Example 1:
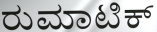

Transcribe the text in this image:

ರುಮಾಟಿಕ್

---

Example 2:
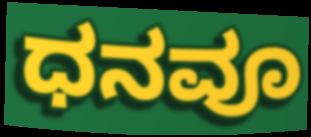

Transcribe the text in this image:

ಧನವೂ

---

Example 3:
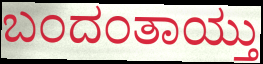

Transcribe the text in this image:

ಬಂದಂತಾಯ್ತು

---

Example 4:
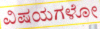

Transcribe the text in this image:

ವಿಷಯಗಳೋ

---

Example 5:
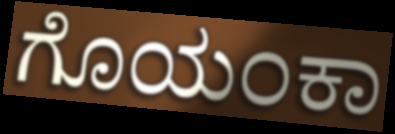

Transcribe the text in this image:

ಗೊಯಂಕಾ